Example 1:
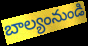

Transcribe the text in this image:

బాల్యంనుండి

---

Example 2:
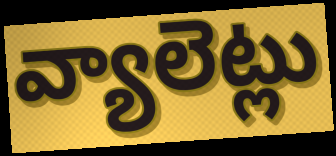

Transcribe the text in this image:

వ్యాలెట్లు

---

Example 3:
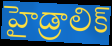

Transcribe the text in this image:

హైడ్రాలిక్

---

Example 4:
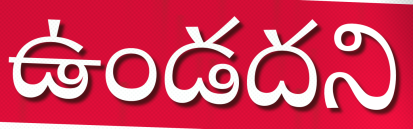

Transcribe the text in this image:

ఉండదని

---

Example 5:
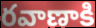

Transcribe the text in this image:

రవాణాకి